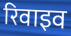
रिवाइव